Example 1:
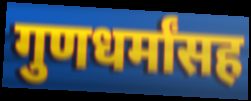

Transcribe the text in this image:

गुणधर्मांसह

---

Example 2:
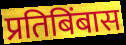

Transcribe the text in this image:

प्रतिबिंबास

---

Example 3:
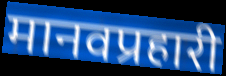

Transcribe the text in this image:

मानवप्रहारी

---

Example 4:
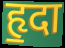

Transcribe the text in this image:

हृ॒दा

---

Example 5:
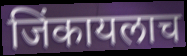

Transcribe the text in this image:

जिंकायलाच